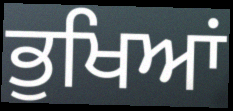
ਭੁਖਿਆਂ